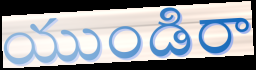
యుండిరా